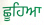
ਛੂਹਿਆ